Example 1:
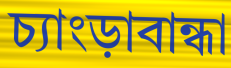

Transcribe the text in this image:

চ্যাংড়াবান্ধা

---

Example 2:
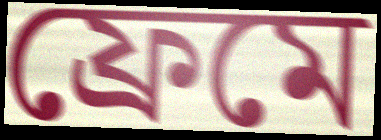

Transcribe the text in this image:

ফ্রেমে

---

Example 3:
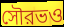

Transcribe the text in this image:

সৌরভও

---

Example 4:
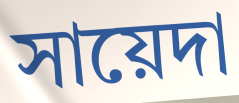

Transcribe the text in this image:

সায়েদা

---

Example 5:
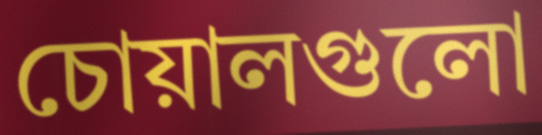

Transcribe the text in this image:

চোয়ালগুলো